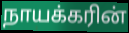
நாயக்கரின்